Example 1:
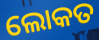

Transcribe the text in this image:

ଲୋକତ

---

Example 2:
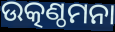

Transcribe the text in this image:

ଉତ୍କଣ୍ଠମନା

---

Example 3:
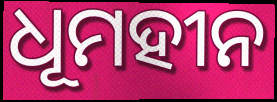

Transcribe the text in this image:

ଧୂମହୀନ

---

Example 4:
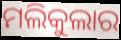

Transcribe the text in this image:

ମଲିକୁଲାର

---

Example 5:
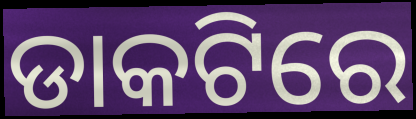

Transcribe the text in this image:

ଡାକଟିରେ